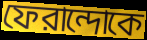
ফেরান্দোকে